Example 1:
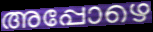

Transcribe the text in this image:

അപ്പോഴെ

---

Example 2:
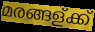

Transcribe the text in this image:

മരങ്ങള്ക്ക്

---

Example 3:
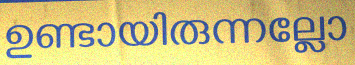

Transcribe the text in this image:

ഉണ്ടായിരുന്നല്ലോ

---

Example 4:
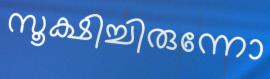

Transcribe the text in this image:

സൂക്ഷിച്ചിരുന്നോ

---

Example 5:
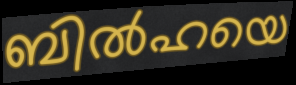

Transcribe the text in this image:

ബിൽഹയെ